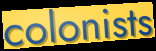
colonists